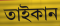
তাইকান